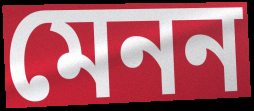
মেনন